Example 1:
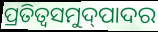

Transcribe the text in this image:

ପ୍ରତିତ୍ଵସମୁଦ୍‌ପାଦର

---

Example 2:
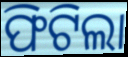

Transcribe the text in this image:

ଫିଟିଲା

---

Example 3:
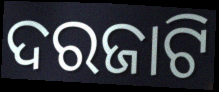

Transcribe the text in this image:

ଦରଜାଟି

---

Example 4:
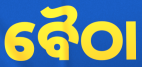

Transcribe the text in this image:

ବୈଠା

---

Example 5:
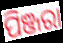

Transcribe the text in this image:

ପିଞ୍ଜରା